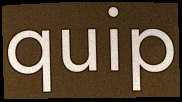
quip